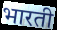
भारती